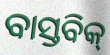
ବାସ୍ତବିକ୍